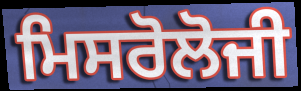
ਮਿਸਰੋਲੋਜੀ